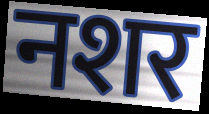
नशर